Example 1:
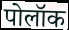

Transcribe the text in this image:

पोलॉक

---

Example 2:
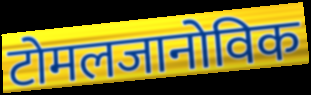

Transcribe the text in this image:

टोमलजानोविक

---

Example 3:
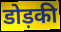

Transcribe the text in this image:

डोड़की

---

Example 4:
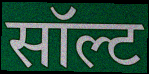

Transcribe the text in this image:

सॉल्‍ट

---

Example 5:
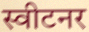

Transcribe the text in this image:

स्वीटनर